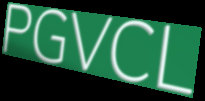
PGVCL